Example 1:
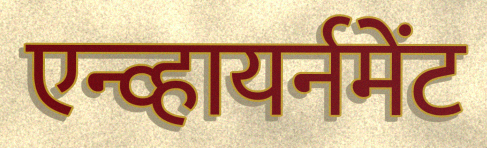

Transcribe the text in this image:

एन्व्हायर्नमेंट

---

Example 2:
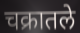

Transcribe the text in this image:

चक्रातले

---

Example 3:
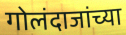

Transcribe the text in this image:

गोलंदाजांच्या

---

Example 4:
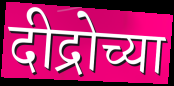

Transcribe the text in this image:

दीद्रोच्या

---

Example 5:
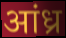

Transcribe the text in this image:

आंध्र